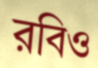
রবিও